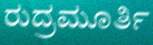
ರುದ್ರಮೂರ್ತಿ